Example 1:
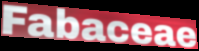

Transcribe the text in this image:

Fabaceae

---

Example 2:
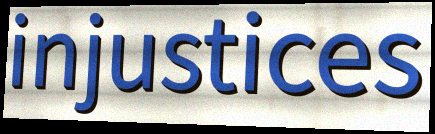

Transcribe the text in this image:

injustices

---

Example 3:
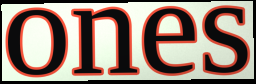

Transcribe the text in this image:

ones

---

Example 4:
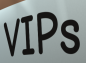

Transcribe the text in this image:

VIPs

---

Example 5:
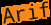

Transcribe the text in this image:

Arif